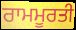
ਰਾਮਮੂਰਤੀ